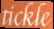
tickle